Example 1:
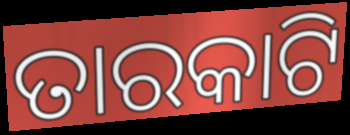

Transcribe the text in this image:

ତାରକାଟି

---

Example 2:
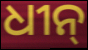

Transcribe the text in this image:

ଧୀନ୍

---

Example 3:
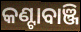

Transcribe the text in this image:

କଣ୍ଟାବାଞ୍ଜି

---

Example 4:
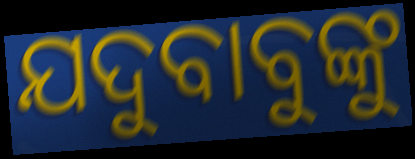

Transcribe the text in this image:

ଯଦୁବାବୁଙ୍କୁ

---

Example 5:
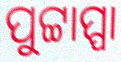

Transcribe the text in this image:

ପୁଟ୍ଟାପ୍ପା